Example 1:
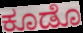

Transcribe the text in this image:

ಕೂಡೊ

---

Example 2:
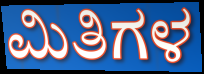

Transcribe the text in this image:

ಮಿತಿಗಳ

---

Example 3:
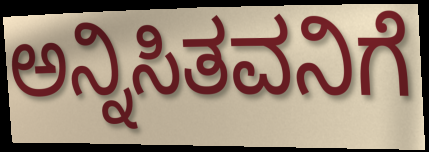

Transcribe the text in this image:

ಅನ್ನಿಸಿತವನಿಗೆ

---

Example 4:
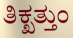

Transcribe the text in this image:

ತಿಕ್ಖತ್ತುಂ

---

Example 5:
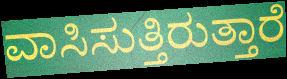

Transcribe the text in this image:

ವಾಸಿಸುತ್ತಿರುತ್ತಾರೆ